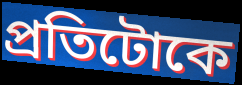
প্ৰতিটোকে